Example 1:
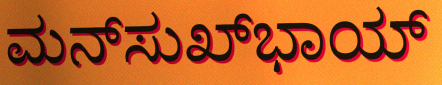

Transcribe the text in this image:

ಮನ್‌ಸುಖ್‌ಭಾಯ್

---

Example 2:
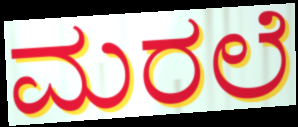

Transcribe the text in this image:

ಮರಲೆ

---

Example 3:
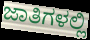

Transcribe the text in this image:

ಜಾತಿಗಳಲ್ಲಿ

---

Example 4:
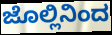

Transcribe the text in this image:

ಜೊಲ್ಲಿನಿಂದ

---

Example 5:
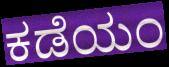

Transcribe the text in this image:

ಕಡೆಯಂ